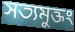
সত্যমুক্তং